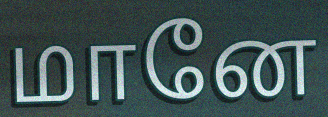
மானே